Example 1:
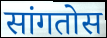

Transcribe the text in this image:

सांगतोस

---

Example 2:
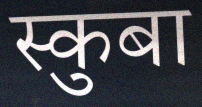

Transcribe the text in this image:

स्कुबा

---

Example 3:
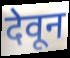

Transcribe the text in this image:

देवून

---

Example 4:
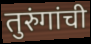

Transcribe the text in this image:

तुरुंगांची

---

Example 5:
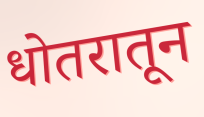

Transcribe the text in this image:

धोतरातून